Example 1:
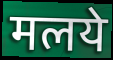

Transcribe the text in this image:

मलये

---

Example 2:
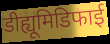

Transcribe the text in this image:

डीह्यूमिडिफाई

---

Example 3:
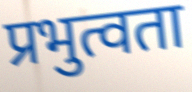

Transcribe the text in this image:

प्रभुत्वता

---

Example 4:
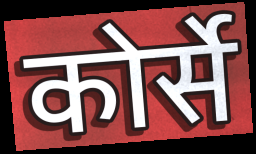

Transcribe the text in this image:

कोर्से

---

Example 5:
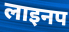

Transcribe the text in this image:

लाइनप